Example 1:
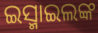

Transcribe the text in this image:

ଇସ୍ମାଇଲଙ୍କ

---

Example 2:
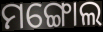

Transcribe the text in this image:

ମଙ୍ଗୋଲ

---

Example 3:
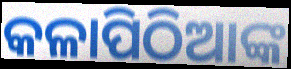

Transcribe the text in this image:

କଳାପିଠିଆଙ୍କ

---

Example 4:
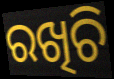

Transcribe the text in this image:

ରଖିଚି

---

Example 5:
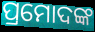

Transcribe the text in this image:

ପ୍ରମୋଦଙ୍କ